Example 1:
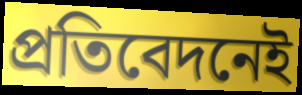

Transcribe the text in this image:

প্রতিবেদনেই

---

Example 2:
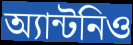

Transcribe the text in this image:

অ্যান্টনিও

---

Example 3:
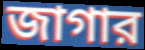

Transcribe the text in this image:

জাগার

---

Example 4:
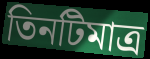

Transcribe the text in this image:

তিনটিমাত্র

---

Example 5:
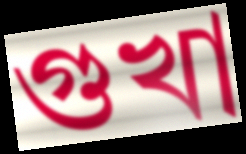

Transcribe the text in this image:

গুখা